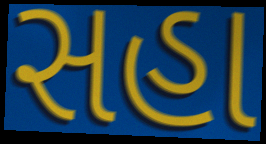
સહા